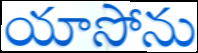
యాసోను